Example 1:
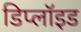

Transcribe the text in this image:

डिप्लॉइड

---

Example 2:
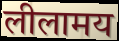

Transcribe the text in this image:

लीलामय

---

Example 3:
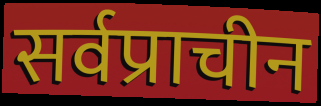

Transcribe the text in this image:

सर्वप्राचीन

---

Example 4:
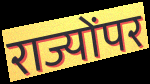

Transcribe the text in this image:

राज्योंपर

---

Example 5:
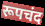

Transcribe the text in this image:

रूपचंद